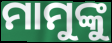
ମାମୁଙ୍କୁ